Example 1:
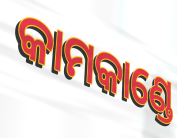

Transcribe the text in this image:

କାମକାଣ୍ଡେ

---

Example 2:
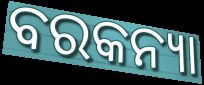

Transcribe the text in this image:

ବରକନ୍ୟା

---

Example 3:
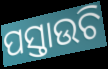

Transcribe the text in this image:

ପସ୍ତାଉଚି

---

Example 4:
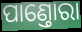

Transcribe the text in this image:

ପାଣ୍ତୋରା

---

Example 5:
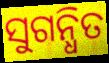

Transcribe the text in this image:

ସୁଗନ୍ଧିତ